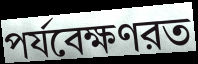
পর্যবেক্ষণরত